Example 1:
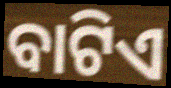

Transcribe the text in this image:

ବାଟିଏ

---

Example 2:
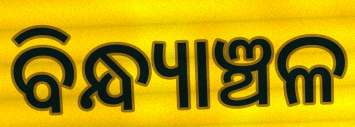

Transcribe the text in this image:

ବିନ୍ଧ୍ୟାଞ୍ଚଳ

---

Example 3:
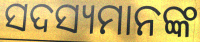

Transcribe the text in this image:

ସଦସ୍ୟମାନଙ୍କ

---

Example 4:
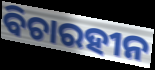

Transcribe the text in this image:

ବିଚାରହୀନ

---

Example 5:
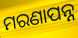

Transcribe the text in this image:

ମରଣାପନ୍ନ